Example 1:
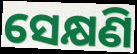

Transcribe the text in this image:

ସେକ୍ଷଣି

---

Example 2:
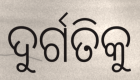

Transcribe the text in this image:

ଦୁର୍ଗତିକୁ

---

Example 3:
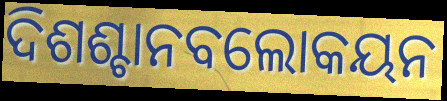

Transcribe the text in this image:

ଦିଶଶ୍ଚାନବଲୋକୟନ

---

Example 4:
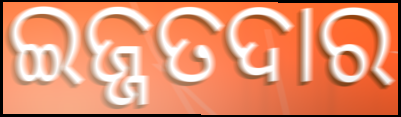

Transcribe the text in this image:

ଇଜ୍ଜତଦାର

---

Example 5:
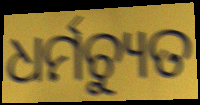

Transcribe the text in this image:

ଧର୍ମଚ୍ୟୁତ